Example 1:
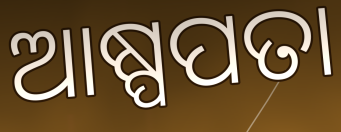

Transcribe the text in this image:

ଆଷ୍ପପତା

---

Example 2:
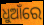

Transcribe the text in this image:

ଧୁଆଁରେ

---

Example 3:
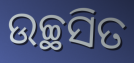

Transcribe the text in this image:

ଉଚ୍ଛସିତ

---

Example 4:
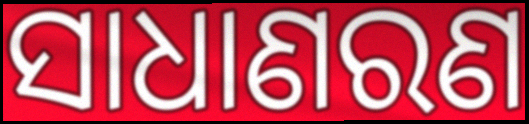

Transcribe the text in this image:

ସାଧାଣରଣ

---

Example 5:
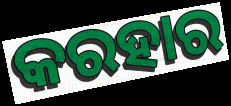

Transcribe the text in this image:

କରହାର